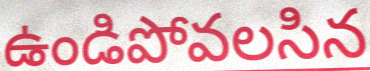
ఉండిపోవలసిన